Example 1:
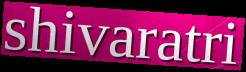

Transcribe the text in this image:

shivaratri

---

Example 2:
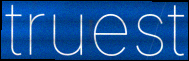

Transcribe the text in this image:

truest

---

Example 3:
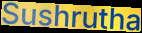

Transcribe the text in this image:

Sushrutha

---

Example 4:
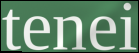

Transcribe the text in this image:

tenei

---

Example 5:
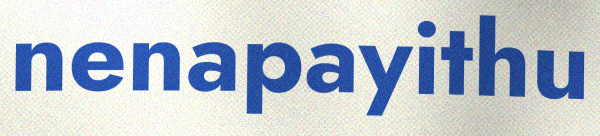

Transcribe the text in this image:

nenapayithu